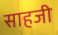
साहजी